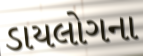
ડાયલોગના